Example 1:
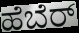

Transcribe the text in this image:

ಹೆಬೆರ್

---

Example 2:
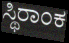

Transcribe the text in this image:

ಸ್ಥಿರಾಂಕ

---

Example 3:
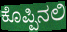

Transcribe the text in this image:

ಕೊಪ್ಪಿನಲಿ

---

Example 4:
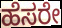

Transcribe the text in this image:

ಹೆಸರೇ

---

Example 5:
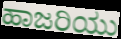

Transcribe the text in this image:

ಹಾಜರಿಯು